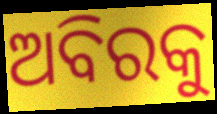
ଅବିରକୁ